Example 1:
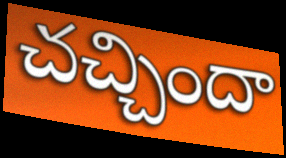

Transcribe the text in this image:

చచ్చిందా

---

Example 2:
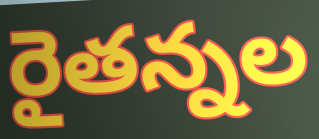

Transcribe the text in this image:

రైతన్నల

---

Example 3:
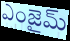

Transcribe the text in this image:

ఎంజైమ్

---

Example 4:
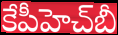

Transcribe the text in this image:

కేపీహెచ్‌బీ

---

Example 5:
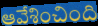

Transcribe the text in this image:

ఆవేశించింది